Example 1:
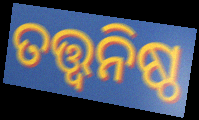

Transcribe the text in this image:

ତତ୍ତ୍ୱନିଷ୍ଠ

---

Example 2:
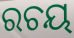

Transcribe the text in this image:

ରଚୟ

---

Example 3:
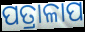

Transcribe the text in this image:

ପତ୍ରାଳାପ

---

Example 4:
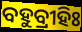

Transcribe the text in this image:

ବହୁବ୍ରୀହିଃ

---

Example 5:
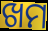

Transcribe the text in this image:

ଖମ